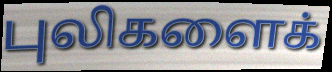
புலிகளைக்